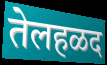
तेलहळद